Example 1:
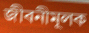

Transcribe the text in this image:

জীবনীমূলক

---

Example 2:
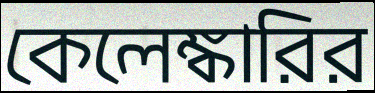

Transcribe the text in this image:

কেলেঙ্কারির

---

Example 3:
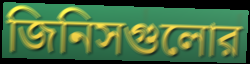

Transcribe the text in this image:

জিনিসগুলোর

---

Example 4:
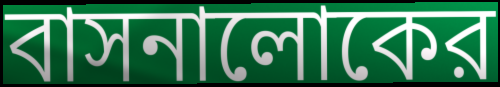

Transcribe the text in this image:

বাসনালোকের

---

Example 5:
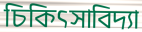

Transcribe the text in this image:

চিকিৎসাবিদ্যা